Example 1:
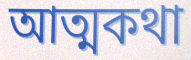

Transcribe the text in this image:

আত্মকথা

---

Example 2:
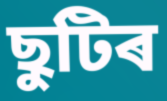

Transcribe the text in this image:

ছুটিৰ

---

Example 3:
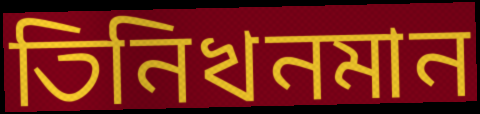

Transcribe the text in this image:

তিনিখনমান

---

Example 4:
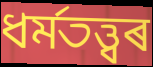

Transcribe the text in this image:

ধৰ্মতত্ত্বৰ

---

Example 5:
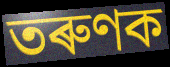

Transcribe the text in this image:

তৰুণক